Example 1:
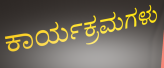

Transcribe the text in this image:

ಕಾರ್ಯಕ್ರಮಗಳು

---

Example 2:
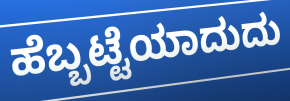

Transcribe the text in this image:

ಹೆಬ್ಬಟ್ಟೆಯಾದುದು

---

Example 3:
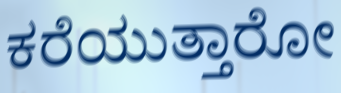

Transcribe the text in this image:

ಕರೆಯುತ್ತಾರೋ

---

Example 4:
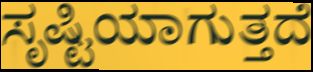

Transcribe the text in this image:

ಸೃಷ್ಟಿಯಾಗುತ್ತದೆ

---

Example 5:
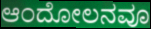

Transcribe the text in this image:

ಆಂದೋಲನವೂ